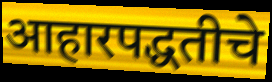
आहारपद्धतीचे